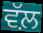
ਵੱਲ਼